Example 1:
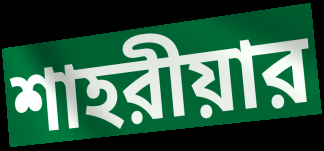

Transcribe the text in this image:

শাহরীয়ার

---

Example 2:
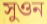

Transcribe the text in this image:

সুওন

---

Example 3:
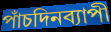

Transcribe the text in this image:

পাঁচদিনব্যাপী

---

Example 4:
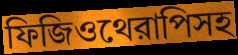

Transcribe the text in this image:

ফিজিওথেরাপিসহ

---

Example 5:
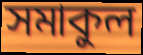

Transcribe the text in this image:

সমাকুল